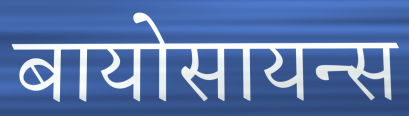
बायोसायन्स